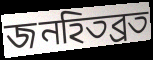
জনহিতব্রত